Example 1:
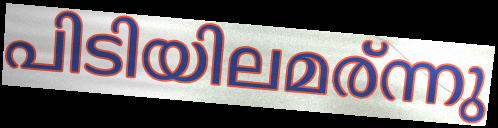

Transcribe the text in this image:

പിടിയിലമര്ന്നു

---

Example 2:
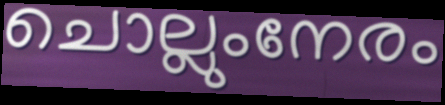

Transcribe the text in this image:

ചൊല്ലുംനേരം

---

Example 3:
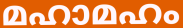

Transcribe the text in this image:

മഹാമഹം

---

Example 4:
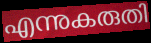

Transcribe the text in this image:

എന്നുകരുതി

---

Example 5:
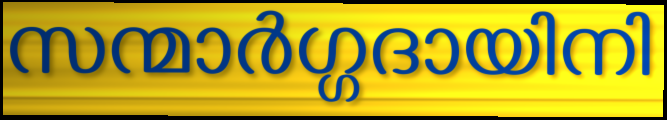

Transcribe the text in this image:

സന്മാർഗ്ഗദായിനി